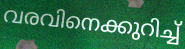
വരവിനെക്കുറിച്ച്